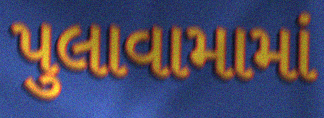
પુલાવામામાં